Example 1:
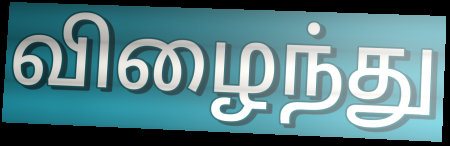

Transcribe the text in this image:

விழைந்து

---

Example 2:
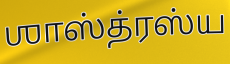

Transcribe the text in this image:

ஶாஸ்த்ரஸ்ய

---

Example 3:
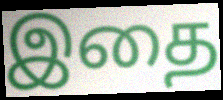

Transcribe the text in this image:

இதை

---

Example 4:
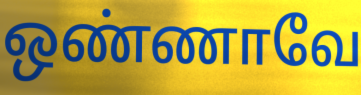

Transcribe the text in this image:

ஒண்ணாவே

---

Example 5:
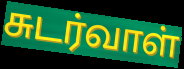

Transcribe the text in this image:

சுடர்வாள்